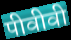
पीवीवी